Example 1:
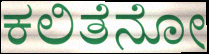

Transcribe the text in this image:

ಕಲಿತೆನೋ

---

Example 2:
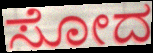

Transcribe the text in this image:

ಸೋದ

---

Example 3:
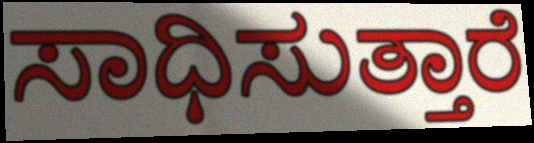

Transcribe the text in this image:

ಸಾಧಿಸುತ್ತಾರೆ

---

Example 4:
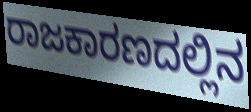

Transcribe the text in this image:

ರಾಜಕಾರಣದಲ್ಲಿನ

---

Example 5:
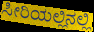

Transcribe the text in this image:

ಸೀರಿಯಲ್ಲಿನಲ್ಲಿ